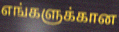
எங்களுக்கான